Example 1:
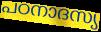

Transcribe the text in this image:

പഠനാദസ്യ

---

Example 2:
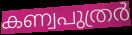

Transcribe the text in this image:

കണ്വപുത്രർ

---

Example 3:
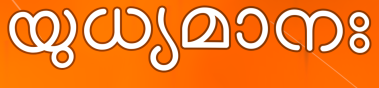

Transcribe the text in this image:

യുധ്യമാനഃ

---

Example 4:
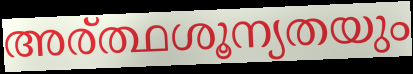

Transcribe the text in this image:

അര്ത്ഥശൂന്യതയും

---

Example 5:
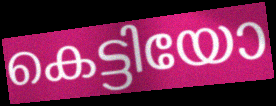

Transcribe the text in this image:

കെട്ടിയോ